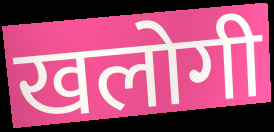
खलोगी